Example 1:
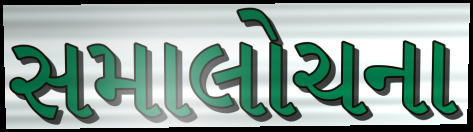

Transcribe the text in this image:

સમાલોચના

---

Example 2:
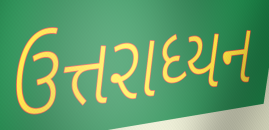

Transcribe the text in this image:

ઉત્તરાધ્યન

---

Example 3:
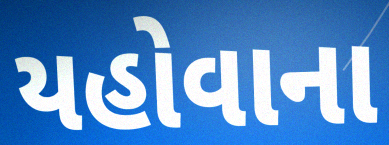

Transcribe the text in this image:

યહોવાના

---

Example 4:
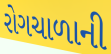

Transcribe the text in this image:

રોગચાળાની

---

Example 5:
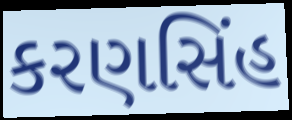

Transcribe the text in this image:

કરણસિંહ